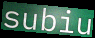
subiu